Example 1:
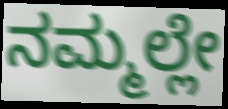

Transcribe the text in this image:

ನಮ್ಮಲ್ಲೇ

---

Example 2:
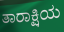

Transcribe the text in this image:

ತಾರಾಕ್ಷಿಯ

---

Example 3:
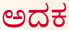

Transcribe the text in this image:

ಅದಕ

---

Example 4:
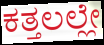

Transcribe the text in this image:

ಕತ್ತಲಲ್ಲೇ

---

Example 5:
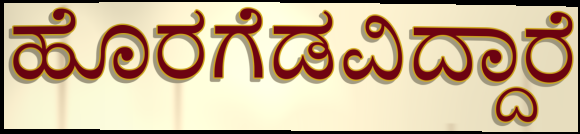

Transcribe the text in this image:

ಹೊರಗೆಡವಿದ್ದಾರೆ